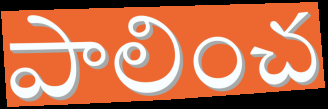
పాలించ